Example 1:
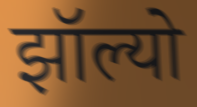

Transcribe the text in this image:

झॉल्यो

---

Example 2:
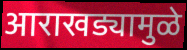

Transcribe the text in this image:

आराखड्यामुळे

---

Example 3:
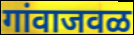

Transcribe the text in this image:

गांवाजवळ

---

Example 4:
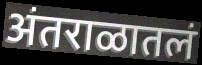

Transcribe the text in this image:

अंतराळातलं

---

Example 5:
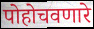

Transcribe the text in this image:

पोहोचवणारे